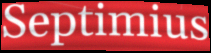
Septimius